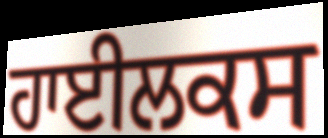
ਹਾਈਲਕਸ